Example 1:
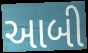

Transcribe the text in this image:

આબી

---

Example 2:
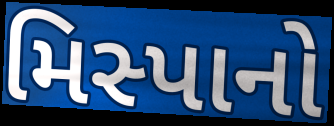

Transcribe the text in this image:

મિસ્પાનો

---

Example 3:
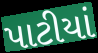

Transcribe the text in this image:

પાટીયાં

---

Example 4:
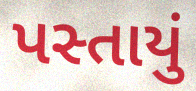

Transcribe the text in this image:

પસ્તાયું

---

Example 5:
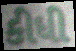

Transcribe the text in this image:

કીધી